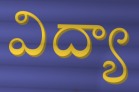
విద్యా